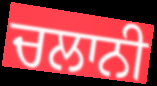
ਚਲਾਨੀ